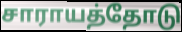
சாராயத்தோடு